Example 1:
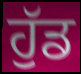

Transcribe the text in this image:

ਹੁੱਡ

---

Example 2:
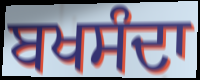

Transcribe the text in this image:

ਬਖਸੰਦਾ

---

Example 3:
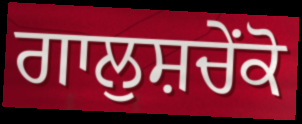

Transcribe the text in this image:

ਗਾਲੁਸ਼ਚੇਂਕੋ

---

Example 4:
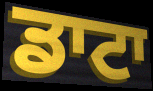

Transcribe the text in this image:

ਡਾਟਾ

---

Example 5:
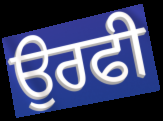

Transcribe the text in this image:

ਉਰਫੀ